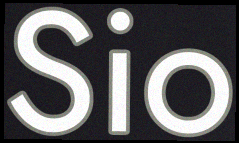
Sio